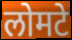
लोमटे